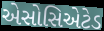
એસોસિએટેડ